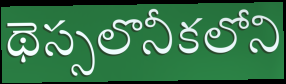
థెస్సలొనీకలోని